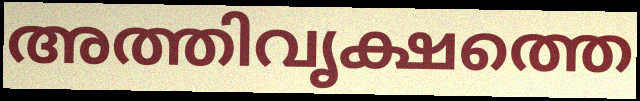
അത്തിവൃക്ഷത്തെ